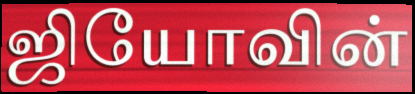
ஜியோவின்